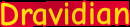
Dravidian